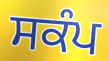
ਸਕੰਪ